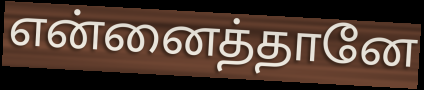
என்னைத்தானே